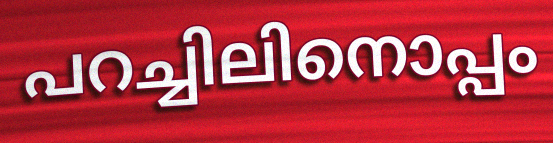
പറച്ചിലിനൊപ്പം